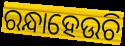
ରନ୍ଧାହେଉଚି